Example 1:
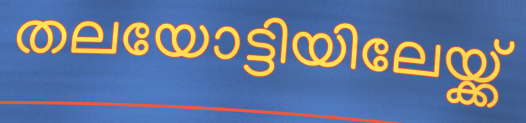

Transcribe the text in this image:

തലയോട്ടിയിലേയ്ക്ക്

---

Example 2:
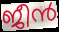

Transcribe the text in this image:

ജീൻ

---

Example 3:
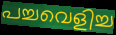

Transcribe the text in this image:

പച്ചവെളിച്ച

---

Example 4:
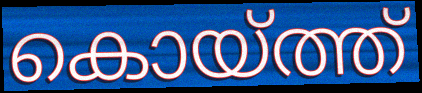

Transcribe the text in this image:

കൊയ്ത്ത്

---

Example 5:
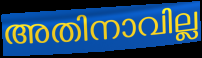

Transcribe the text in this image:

അതിനാവില്ല